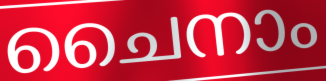
ചൈനാം